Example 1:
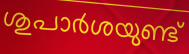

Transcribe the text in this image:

ശുപാർശയുണ്ട്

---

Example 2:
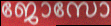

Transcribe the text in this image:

ജോസോ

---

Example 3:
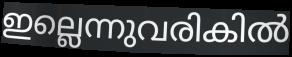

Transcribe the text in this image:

ഇല്ലെന്നുവരികിൽ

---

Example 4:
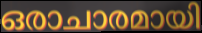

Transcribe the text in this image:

ഒരാചാരമായി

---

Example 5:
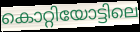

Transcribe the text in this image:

കൊറ്റിയോട്ടിലെ